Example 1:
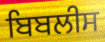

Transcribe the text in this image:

ਬਿਬਲੀਸ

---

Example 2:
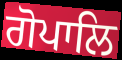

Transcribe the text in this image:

ਗੋਪਾਲਿ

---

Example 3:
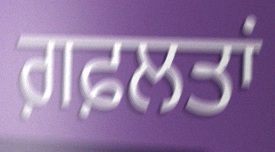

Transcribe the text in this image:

ਗ਼ਫ਼ਲਤਾਂ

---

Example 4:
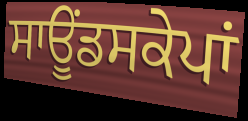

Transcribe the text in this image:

ਸਾਊਂਡਸਕੇਪਾਂ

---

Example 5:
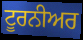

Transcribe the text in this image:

ਟੂਰਨੀਅਰ